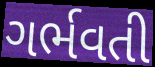
ગર્ભવતી